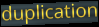
duplication